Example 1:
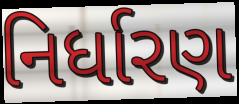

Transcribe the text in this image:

નિર્ધારણ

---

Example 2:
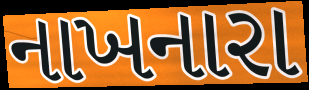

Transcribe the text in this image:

નાખનારા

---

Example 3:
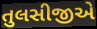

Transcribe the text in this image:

તુલસીજીએ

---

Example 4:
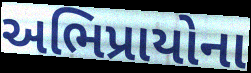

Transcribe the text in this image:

અભિપ્રાયોના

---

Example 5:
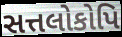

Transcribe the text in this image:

સત્તલોકોપિ